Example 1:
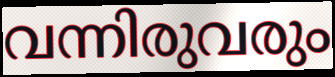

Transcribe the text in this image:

വന്നിരുവരും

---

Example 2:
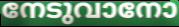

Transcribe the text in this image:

നേടുവാനോ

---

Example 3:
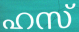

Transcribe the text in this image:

ഹസ്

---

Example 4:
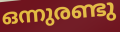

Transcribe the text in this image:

ഒന്നുരണ്ടു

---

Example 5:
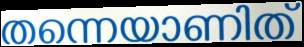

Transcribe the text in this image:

തന്നെയാണിത്